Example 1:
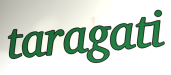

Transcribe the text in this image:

taragati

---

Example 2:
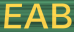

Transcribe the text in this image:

EAB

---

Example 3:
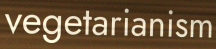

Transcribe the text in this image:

vegetarianism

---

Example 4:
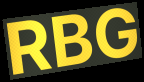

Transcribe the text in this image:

RBG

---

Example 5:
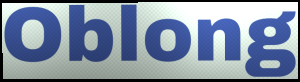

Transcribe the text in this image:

Oblong